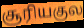
சூரியகுல